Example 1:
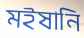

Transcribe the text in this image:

মইষানি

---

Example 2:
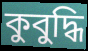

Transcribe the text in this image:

কুবুদ্ধি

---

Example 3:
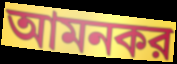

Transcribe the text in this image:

আমনকর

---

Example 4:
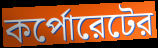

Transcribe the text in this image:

কর্পোরেটের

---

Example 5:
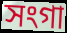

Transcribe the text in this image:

সংগা